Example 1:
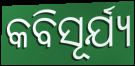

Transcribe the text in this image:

କବିସୂର୍ଯ୍ଯ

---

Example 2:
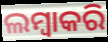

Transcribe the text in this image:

ଲମ୍ବାକରି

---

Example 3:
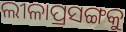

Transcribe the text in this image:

ଲୀଳାପ୍ରସଙ୍ଗକୁ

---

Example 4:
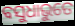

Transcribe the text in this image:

ବସୁଧାଭୁତେ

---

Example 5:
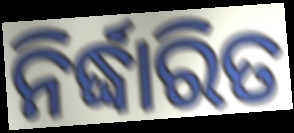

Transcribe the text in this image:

ନିର୍ଦ୍ଧାରିତ